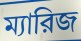
ম্যারিজ